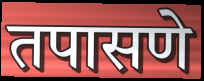
तपासणे